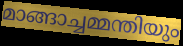
മാങ്ങാച്ചമ്മന്തിയും